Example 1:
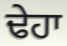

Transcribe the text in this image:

ਢੇਹਾ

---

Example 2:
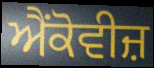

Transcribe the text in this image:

ਐਂਕੋਵੀਜ਼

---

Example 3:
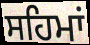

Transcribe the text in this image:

ਸਹਿਮਾਂ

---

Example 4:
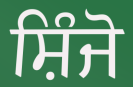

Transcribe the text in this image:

ਸ਼ਿੰਜੋ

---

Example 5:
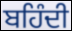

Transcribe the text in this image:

ਬਹਿੰਦੀ